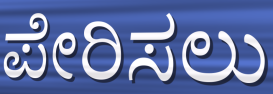
ಪೇರಿಸಲು